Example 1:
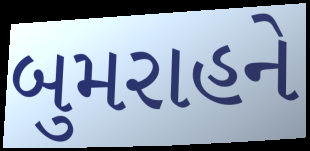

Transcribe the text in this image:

બુમરાહને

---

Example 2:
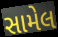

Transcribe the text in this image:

સામેલ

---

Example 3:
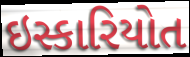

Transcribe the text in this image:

ઇસ્કારિયોત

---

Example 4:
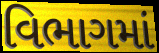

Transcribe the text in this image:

વિભાગમાં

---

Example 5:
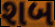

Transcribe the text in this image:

શબ